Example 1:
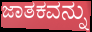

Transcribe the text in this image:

ಜಾತಕವನ್ನು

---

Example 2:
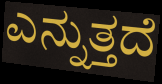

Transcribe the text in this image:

ಎನ್ನುತ್ತದೆ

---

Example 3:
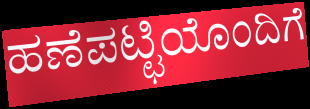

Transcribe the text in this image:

ಹಣೆಪಟ್ಟಿಯೊಂದಿಗೆ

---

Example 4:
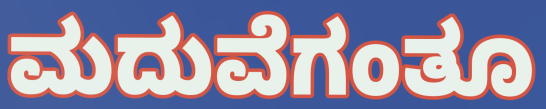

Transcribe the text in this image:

ಮದುವೆಗಂತೂ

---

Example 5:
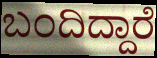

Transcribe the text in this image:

ಬಂದಿದ್ದಾರೆ